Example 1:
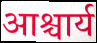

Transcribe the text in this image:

आश्चार्य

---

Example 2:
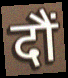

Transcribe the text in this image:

दौं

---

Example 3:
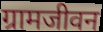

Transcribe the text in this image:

ग्रामजीवन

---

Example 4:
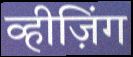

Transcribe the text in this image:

व्हीज़िंग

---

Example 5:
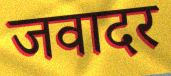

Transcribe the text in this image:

जवादर